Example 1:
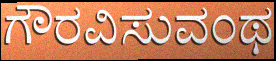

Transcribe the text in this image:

ಗೌರವಿಸುವಂಥ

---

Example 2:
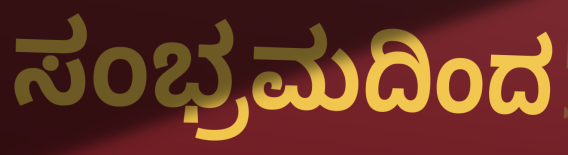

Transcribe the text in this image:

ಸಂಭ್ರಮದಿಂದ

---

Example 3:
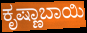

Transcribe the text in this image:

ಕೃಷ್ಣಾಬಾಯಿ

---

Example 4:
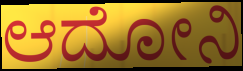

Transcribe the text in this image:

ಆದೋನಿ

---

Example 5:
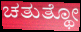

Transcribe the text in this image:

ಚತುತ್ಥೋ